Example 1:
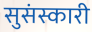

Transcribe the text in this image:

सुसंस्कारी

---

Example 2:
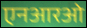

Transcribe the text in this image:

एनआरओ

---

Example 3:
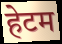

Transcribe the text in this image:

हेटम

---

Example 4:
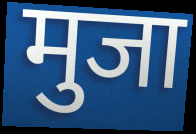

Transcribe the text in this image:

मुजा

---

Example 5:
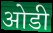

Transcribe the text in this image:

ओडी